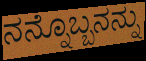
ನನ್ನೊಬ್ಬನನ್ನು